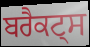
ਬਰੈਕਟ੍ਸ